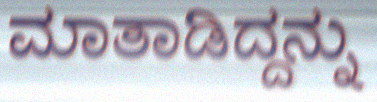
ಮಾತಾಡಿದ್ದನ್ನು